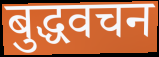
बुद्धवचन